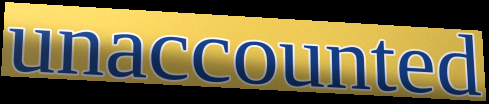
unaccounted